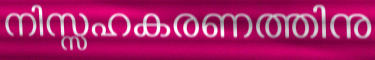
നിസ്സഹകരണത്തിനു